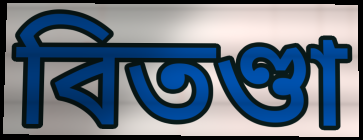
বিতণ্ডা